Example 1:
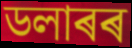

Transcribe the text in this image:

ডলাৰৰ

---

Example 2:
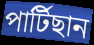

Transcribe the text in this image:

পাৰ্টিছান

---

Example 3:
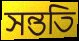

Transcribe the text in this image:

সন্ততি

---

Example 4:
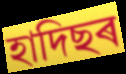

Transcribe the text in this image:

হাদিছৰ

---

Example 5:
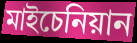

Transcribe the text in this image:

মাইচেনিয়ান